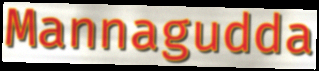
Mannagudda